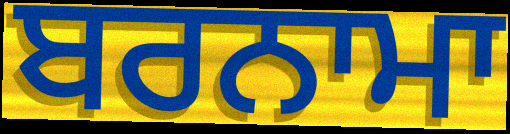
ਬਰਨਾਮਾ